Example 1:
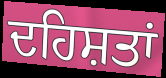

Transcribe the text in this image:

ਦਹਿਸ਼ਤਾਂ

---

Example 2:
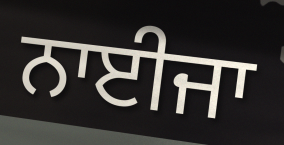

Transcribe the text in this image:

ਨਾਈਜਾ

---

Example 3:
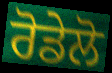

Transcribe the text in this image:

ਰੋਡੇਲੋ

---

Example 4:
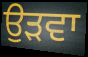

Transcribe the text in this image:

ਉੜਵਾ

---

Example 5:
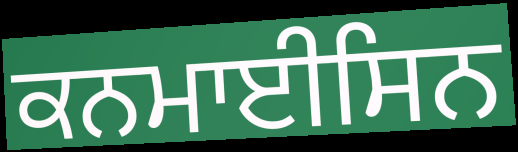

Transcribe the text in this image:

ਕਨਮਾਈਸਿਨ